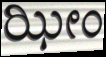
ಝೀಂ